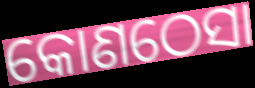
କୋଣଠେସା